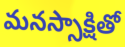
మనస్సాక్షితో